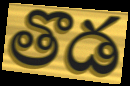
తొడ